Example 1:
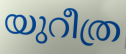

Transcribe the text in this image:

യുറീത്ര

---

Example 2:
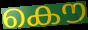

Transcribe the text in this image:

കൌ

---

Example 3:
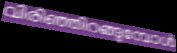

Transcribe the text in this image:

വിരിഞ്ഞിറങ്ങുമ്പോൾ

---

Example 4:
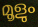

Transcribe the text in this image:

മൂളും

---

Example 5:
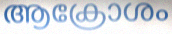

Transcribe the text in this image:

ആക്രോശം